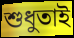
শুধুতাই